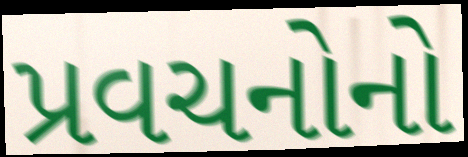
પ્રવચનોનો